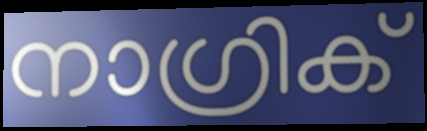
നാഗ്രിക്